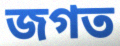
জগত